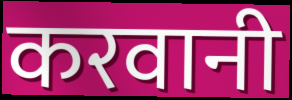
करवानी